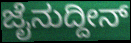
ಜೈನುದ್ದೀನ್